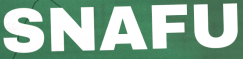
SNAFU